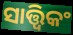
ସାତ୍ତ୍ୱିକଂ